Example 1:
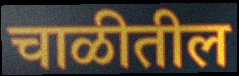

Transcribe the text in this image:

चाळीतील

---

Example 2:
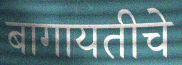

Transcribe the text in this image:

बागायतीचे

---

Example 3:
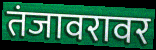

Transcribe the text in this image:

तंजावरावर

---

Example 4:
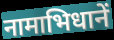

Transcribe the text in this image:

नामाभिधानें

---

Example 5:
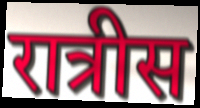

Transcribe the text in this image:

रात्रीस